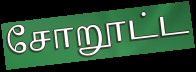
சோறூட்ட